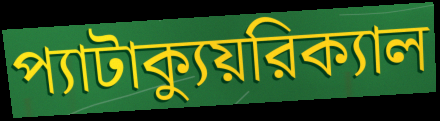
প্যাটাক্যুয়রিক্যাল